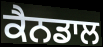
ਕੈਨਡਾਲ